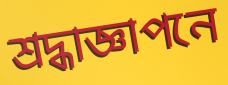
শ্রদ্ধাজ্ঞাপনে